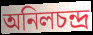
অনিলচন্দ্র